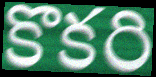
కొకరి